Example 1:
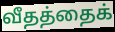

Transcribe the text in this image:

வீதத்தைக்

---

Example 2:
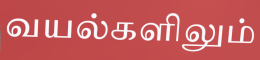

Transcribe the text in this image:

வயல்களிலும்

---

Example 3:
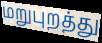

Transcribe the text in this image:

மறுபுறத்து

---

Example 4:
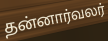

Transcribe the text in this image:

தன்னார்வலர்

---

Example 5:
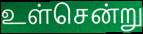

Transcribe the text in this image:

உள்சென்று